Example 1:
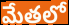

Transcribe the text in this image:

మేతలో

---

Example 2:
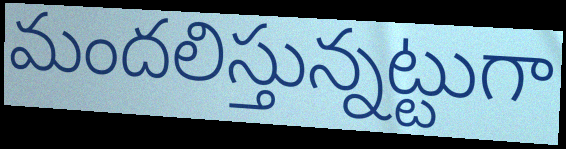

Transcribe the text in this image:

మందలిస్తున్నట్టుగా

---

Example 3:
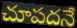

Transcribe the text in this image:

చూపదనే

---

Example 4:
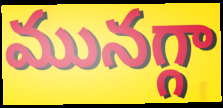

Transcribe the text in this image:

మునగ్గా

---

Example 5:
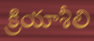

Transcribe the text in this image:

క్రియాశీలి